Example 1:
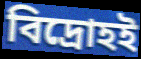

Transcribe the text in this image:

বিদ্রোহই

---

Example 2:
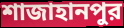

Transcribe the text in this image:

শাজাহানপুর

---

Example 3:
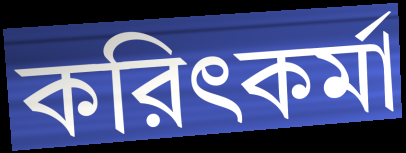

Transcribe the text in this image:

করিৎকর্মা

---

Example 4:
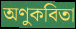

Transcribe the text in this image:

অণুকবিতা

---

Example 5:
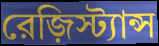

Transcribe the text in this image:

রেজ়িস্ট্যান্স